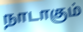
நாடாகும்